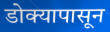
डोक्यापासून